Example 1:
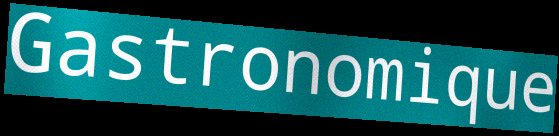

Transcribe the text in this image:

Gastronomique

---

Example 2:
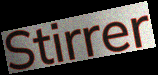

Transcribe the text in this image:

Stirrer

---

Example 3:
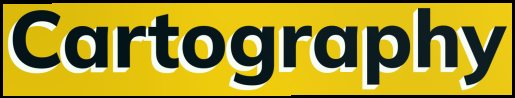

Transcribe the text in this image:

Cartography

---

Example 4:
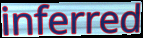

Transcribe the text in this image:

inferred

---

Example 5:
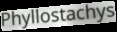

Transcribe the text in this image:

Phyllostachys